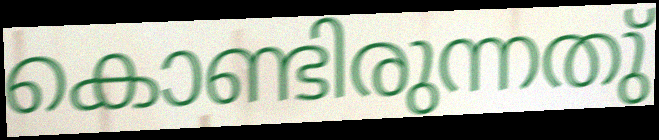
കൊണ്ടിരുന്നതു്